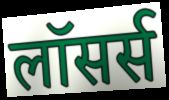
लॉसर्स